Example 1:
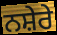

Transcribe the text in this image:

ਨਸ਼ੇਰੇ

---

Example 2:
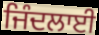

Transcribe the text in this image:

ਜਿੰਦਲਾਈ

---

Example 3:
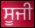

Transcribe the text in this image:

ਸੂਜੀ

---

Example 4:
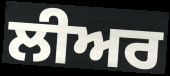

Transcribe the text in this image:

ਲੀਅਰ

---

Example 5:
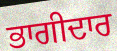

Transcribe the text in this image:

ਭਾਗੀਦਾਰ